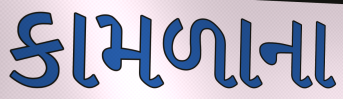
કામળાના